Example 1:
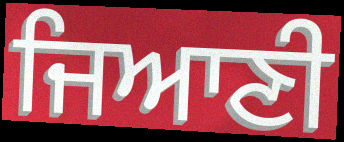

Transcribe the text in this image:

ਜਿਆਣੀ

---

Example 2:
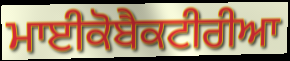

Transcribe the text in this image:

ਮਾਈਕੋਬੈਕਟੀਰੀਆ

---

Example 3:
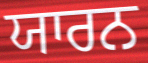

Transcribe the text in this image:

ਯਾਰਨ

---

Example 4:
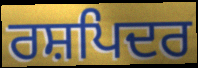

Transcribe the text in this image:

ਰਸ਼ਪਿਦਰ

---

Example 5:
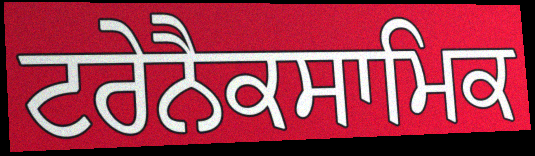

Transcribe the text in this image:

ਟਰੇਨੈਕਸਾਮਿਕ